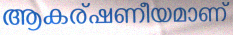
ആകര്ഷണീയമാണ്